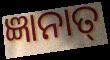
ଜ୍ଞାନାତ୍